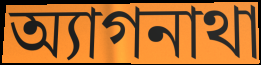
অ্যাগনাথা